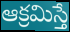
ఆక్రమిస్తే